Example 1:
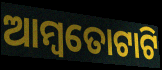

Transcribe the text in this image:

ଆମ୍ବତୋଟାଟି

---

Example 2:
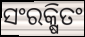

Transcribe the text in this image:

ସଂରକ୍ଷିତଂ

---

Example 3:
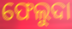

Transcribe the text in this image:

ଫେଲୁଦା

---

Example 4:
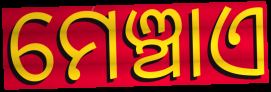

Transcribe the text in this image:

ମେଞ୍ଚାଏ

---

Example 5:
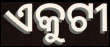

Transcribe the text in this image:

ଏକୁଟୀ